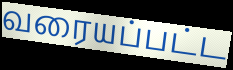
வரையப்பட்ட